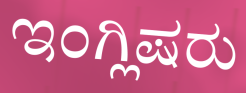
ಇಂಗ್ಲಿಷರು